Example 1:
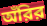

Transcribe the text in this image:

অঁরির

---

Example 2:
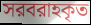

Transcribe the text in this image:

সরবরাহকৃত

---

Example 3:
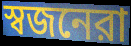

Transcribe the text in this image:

স্বজনেরা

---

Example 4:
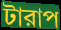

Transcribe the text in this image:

টারাপ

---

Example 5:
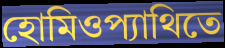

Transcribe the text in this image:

হোমিওপ্যাথিতে